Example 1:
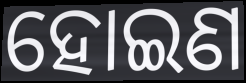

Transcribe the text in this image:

ହୋଇଣ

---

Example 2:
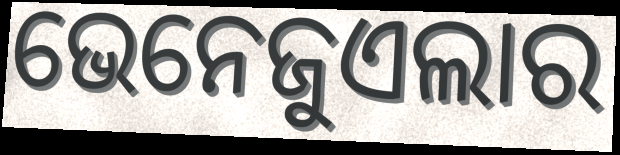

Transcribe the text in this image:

ଭେନେଜୁଏଲାର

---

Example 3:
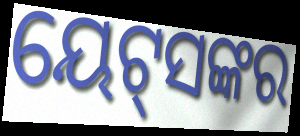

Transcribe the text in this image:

ୟେଟ୍‌ସଙ୍କର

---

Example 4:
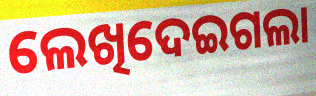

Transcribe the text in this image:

ଲେଖିଦେଇଗଲା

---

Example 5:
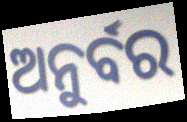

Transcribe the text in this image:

ଅନୁର୍ବର